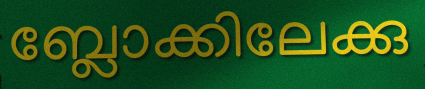
ബ്ലോക്കിലേക്കു